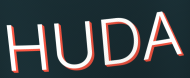
HUDA